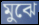
মুঝে